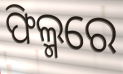
ଫିଲ୍ମରେ